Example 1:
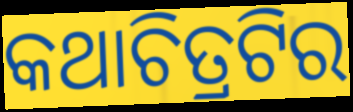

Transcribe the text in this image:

କଥାଚିତ୍ରଟିର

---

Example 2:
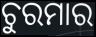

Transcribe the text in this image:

ଚୁରମାର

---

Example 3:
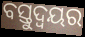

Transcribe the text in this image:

ବସ୍ତୁଦ୍ୱୟର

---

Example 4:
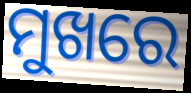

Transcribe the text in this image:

ମୁଖରେ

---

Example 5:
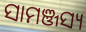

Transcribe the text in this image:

ସାମଞ୍ଜସ୍ୟ